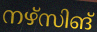
നഴ്സിങ്